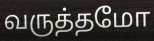
வருத்தமோ